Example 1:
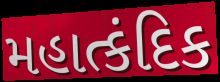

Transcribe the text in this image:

મહાત્કંદિક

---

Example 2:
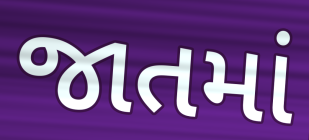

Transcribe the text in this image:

જાતમાં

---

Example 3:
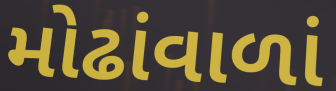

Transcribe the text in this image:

મોઢાંવાળાં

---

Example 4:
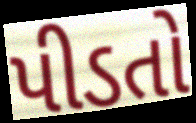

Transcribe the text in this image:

પીડતો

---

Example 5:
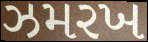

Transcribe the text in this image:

ઝમરખ